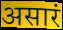
असारं